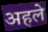
अहले